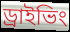
ড্ৰাইভিং